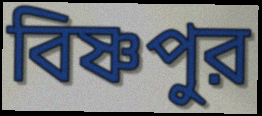
বিষ্ণপুর